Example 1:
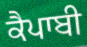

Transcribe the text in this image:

ਕੈਪਾਬੀ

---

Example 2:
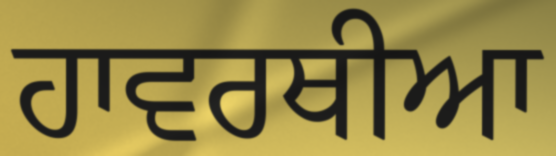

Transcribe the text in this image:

ਹਾਵਰਥੀਆ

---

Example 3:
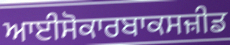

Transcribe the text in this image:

ਆਈਸੋਕਾਰਬਾਕਸਜ਼ੀਡ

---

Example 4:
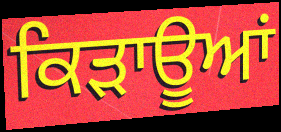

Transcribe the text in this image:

ਕਿੜਾਊਆਂ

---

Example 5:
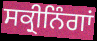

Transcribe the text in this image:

ਸਕ੍ਰੀਨਿੰਗਾਂ